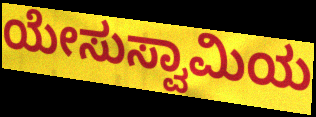
ಯೇಸುಸ್ವಾಮಿಯ